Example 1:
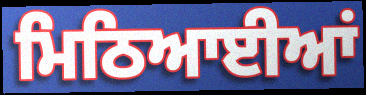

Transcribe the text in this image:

ਮਿਠਿਆਈਆਂ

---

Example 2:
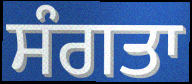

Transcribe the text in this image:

ਸੰਗਤਾ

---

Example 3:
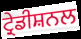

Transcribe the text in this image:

ਟ੍ਰੇਡੀਸ਼ਨਲ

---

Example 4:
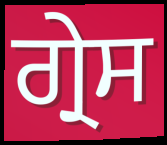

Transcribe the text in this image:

ਗ੍ਰੇਸ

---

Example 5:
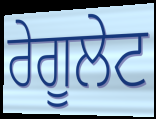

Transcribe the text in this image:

ਰੇਗੂਲੇਟ